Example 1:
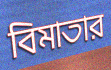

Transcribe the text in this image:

বিমাতার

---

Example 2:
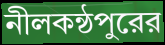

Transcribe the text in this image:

নীলকন্ঠপুরের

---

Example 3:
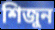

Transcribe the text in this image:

শিজুন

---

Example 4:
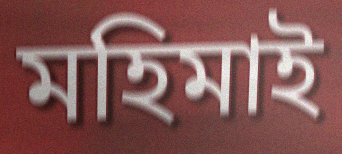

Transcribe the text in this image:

মহিমাই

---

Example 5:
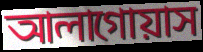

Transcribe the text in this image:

আলাগোয়াস